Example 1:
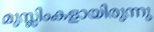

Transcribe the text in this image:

മുസ്ലിംകളായിരുന്നു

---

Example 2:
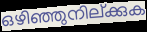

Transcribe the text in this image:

ഒഴിഞ്ഞുനില്ക്കുക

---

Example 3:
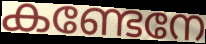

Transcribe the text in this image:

കണ്ടേനേ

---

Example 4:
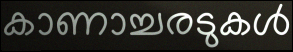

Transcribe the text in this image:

കാണാച്ചരടുകൾ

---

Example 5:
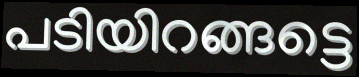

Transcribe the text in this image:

പടിയിറങ്ങട്ടെ